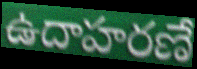
ఉదాహరణే